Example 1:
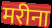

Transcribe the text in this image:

मरीना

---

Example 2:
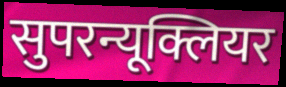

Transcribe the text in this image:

सुपरन्यूक्लियर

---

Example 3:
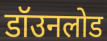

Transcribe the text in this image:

डॉउनलोड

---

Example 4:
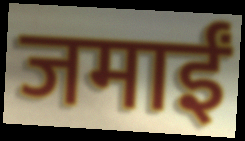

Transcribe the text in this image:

जमाईं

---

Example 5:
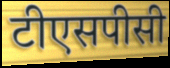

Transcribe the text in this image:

टीएसपीसी